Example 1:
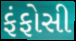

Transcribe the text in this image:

ફંફોસી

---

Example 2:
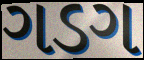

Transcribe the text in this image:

ગડગ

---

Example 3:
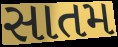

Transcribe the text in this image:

સાતમ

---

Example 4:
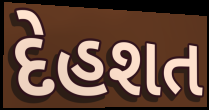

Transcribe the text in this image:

દેહશત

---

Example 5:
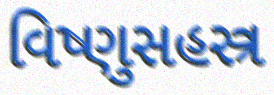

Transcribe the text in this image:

વિષ્ણુસહસ્ત્ર